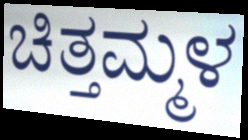
ಚಿತ್ತಮ್ಮಳ